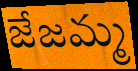
జేజమ్మ